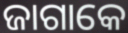
ଜାଗାକେ